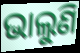
ଭାଲୁଣି